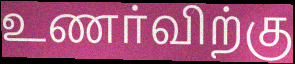
உணர்விற்கு